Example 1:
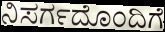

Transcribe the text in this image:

ನಿಸರ್ಗದೊಂದಿಗೆ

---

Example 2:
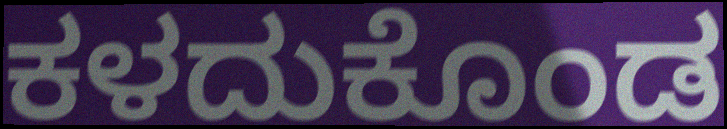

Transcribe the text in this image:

ಕಳದುಕೊಂಡ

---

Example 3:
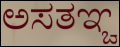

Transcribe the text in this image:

ಅಸತಞ್ಚ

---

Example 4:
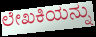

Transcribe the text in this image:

ಲೇಖಕಿಯನ್ನು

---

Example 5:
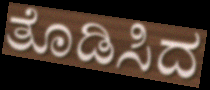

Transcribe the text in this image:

ತೊಡಿಸಿದ